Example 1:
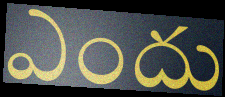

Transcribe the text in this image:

ఎందు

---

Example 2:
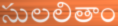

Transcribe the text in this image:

సులలితాం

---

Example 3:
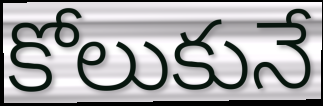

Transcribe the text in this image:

కోలుకునే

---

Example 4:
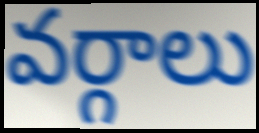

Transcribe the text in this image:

వర్గాలు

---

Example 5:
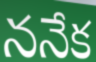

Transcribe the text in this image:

ననేక